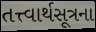
તત્ત્વાર્થસૂત્રના